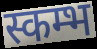
स्कम्भ